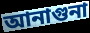
আনাগুনা